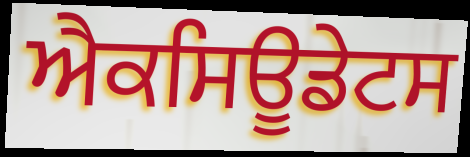
ਐਕਸਿਊਡੇਟਸ